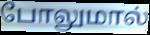
போலுமால்